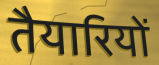
तैयारियों